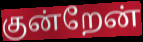
குன்றேன்